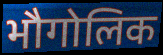
भौगोलिक